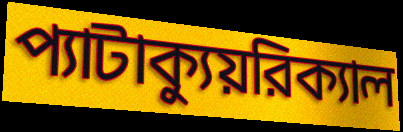
প্যাটাক্যুয়রিক্যাল